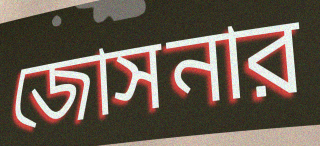
জোসনার